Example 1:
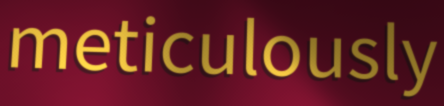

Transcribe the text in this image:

meticulously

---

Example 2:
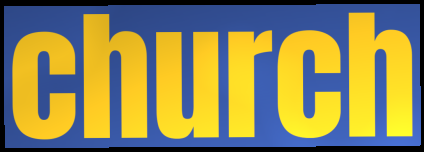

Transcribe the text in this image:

church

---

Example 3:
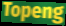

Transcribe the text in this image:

Topeng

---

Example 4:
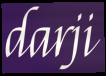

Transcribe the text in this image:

darji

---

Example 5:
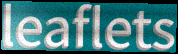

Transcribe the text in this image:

leaflets